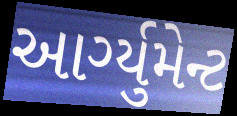
આર્ગ્યુમેન્ટ